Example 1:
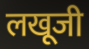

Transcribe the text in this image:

लखूजी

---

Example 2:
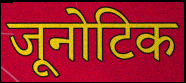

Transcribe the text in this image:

जूनोटिक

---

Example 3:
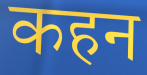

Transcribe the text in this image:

कहन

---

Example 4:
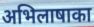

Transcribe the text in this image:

अभिलाषाका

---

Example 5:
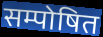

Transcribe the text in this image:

सम्पोषित